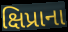
ક્ષિપ્રાના